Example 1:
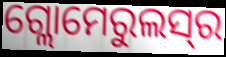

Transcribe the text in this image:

ଗ୍ଲୋମେରୁଲସ୍‌ର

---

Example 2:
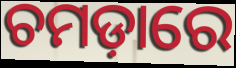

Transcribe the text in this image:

ଚମଡ଼ାରେ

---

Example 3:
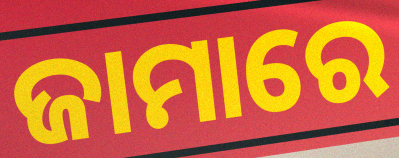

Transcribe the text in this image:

ଜାମାରେ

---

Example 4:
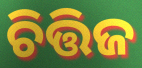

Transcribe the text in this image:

ଚିତ୍ତିଜ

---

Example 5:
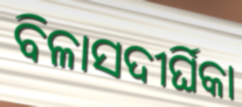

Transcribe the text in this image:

ବିଳାସଦୀର୍ଘିକା